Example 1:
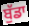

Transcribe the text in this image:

ਬੁੱਡਾ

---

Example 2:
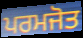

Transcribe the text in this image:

ਪਰਮਜੋਤ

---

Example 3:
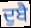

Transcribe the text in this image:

ਦੁਬੈ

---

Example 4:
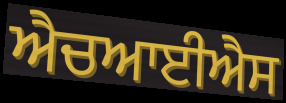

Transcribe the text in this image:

ਐਚਆਈਐਸ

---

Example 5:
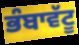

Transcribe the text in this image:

ਭੰਬਾਵੱਟੂ